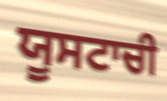
ਯੂਸਟਾਚੀ